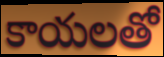
కాయలతో